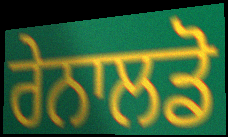
ਰੇਨਾਲਡੋ